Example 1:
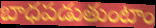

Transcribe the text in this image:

బాధపడుతుంటాం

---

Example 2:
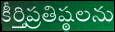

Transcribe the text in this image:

కీర్తిప్రతిష్ఠలను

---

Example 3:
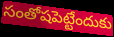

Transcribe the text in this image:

సంతోషపెట్టేందుకు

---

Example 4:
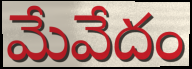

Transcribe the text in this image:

మేవేదం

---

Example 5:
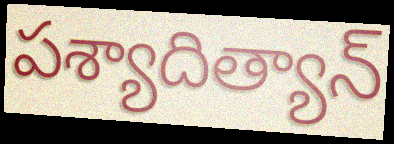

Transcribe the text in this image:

పశ్యాదిత్యాన్